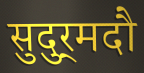
सुदुर्मदौ